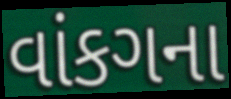
વાંકગના